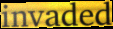
invaded